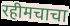
रहीमचाचा